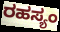
ರಹಸ್ಯಂ